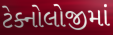
ટેક્નોલોજીમાં